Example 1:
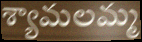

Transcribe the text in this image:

శ్యామలమ్మ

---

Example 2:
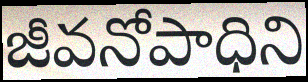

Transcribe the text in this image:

జీవనోపాధిని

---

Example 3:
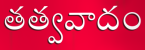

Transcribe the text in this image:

తత్వవాదం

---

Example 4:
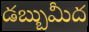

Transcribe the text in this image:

డబ్బుమీద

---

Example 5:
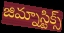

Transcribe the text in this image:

జిమ్నాస్టిక్స్